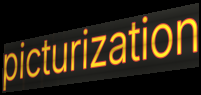
picturization